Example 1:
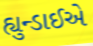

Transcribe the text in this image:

હ્યુન્ડાઈએ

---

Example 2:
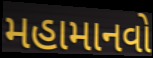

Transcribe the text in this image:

મહામાનવો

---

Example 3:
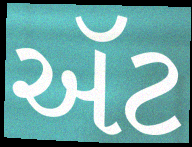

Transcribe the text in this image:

ઍટ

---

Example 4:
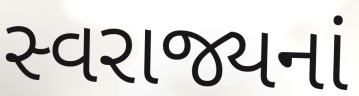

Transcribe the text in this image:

સ્વરાજ્યનાં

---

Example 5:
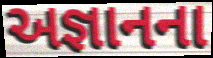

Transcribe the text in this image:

અજ્ઞાનના